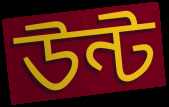
উন্ট